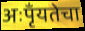
अःपृँयतेचा